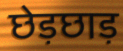
छेड़छाड़